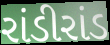
રાંડીરાંડ